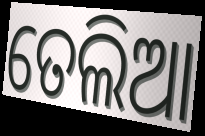
ତେଲିଆ